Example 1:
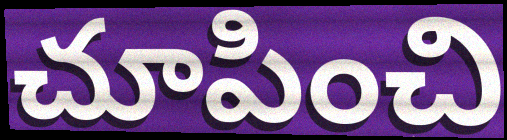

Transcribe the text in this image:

చూపించి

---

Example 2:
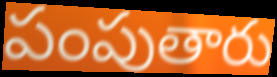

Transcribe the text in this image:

పంపుతారు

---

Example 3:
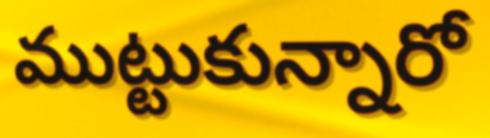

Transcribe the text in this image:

ముట్టుకున్నారో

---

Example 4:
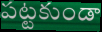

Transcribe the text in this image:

పట్టకుండా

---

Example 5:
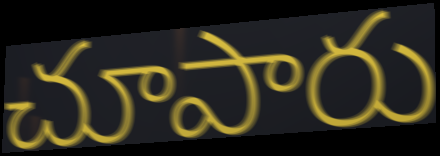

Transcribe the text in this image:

చూపారు